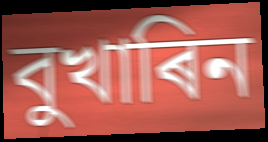
বুখাৰিন